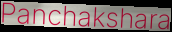
Panchakshara